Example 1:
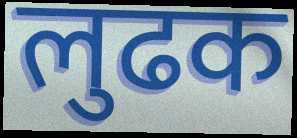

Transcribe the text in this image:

लुढक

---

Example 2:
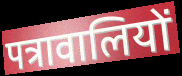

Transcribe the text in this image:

पत्रावालियों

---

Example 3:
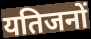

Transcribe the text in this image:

यतिजनों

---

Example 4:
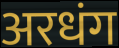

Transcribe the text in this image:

अरधंग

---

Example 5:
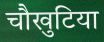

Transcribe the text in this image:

चौखुटिया